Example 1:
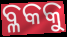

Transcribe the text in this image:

ବ୍ଳକକୁ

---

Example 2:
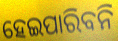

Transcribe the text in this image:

ହେଇପାରିବନି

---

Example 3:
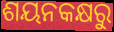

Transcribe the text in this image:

ଶୟନକକ୍ଷରୁ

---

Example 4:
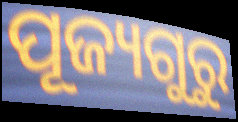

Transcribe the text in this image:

ପୂଜ୍ୟଗୁରୁ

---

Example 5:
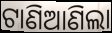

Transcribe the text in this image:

ଟାଣିଆଣିଲା